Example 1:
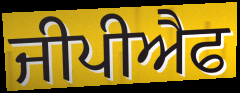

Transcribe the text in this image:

ਜੀਪੀਐਫ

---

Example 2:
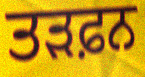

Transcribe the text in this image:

ਤੜਫ਼ਨ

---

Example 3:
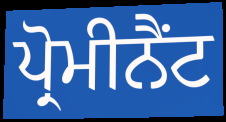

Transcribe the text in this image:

ਪ੍ਰੋਮੀਨੈਂਟ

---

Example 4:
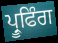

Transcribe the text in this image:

ਪ੍ਰੂਫਿੰਗ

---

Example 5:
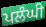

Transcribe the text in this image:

ਪਲੰਘੀ